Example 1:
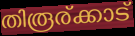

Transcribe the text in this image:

തിരൂര്ക്കാട്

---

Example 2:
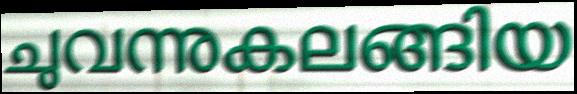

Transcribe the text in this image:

ചുവന്നുകലങ്ങിയ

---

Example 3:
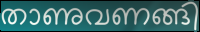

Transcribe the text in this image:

താണുവണങ്ങി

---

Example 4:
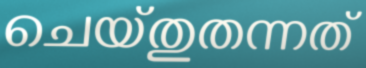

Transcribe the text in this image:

ചെയ്തുതന്നത്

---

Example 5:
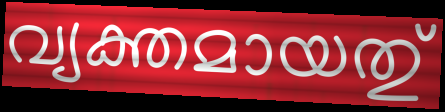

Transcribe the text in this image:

വ്യക്തമായതു്